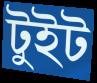
টুইট